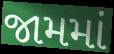
જામમાં